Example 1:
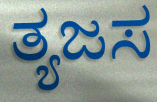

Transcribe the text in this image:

ತ್ಯಜಸ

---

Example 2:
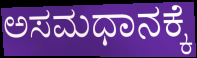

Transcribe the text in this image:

ಅಸಮಧಾನಕ್ಕೆ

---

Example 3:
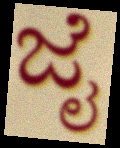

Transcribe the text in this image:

ಜೈ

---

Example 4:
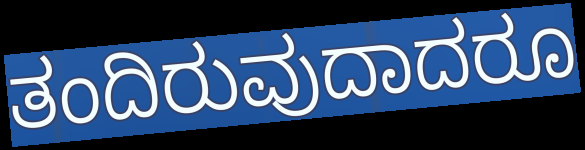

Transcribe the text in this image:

ತಂದಿರುವುದಾದರೂ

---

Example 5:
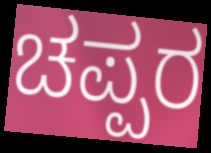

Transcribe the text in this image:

ಚಪ್ಪರ